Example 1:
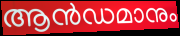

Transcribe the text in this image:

ആൻഡമാനും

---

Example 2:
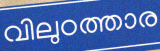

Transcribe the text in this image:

വിലുഠത്താര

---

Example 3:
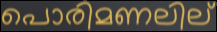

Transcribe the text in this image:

പൊരിമണലില്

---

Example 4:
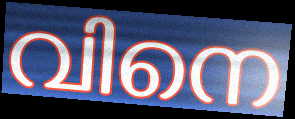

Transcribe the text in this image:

വിനെ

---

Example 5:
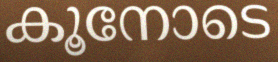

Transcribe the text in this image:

കൂനോടെ